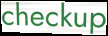
checkup